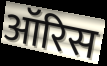
ऑरिस